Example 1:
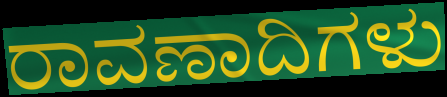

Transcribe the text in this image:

ರಾವಣಾದಿಗಳು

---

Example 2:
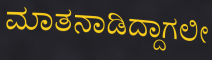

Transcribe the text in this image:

ಮಾತನಾಡಿದ್ದಾಗಲೀ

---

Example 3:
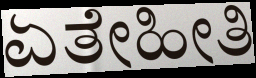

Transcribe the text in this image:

ಏತೇಹೀತಿ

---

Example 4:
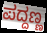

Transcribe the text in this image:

ಪದ್ದಣ್ಣ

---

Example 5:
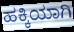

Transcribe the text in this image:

ಹಕ್ಕಿಯಾಗಿ